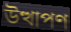
উত্থাপণ